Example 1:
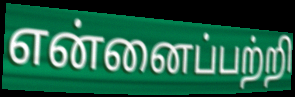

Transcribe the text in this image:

என்னைப்பற்றி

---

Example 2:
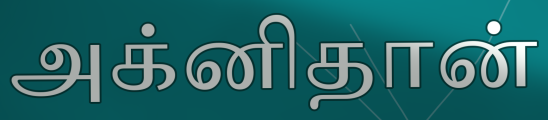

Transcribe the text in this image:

அக்னிதான்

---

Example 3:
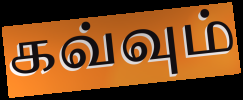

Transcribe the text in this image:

கவ்வும்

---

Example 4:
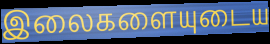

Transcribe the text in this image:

இலைகளையுடைய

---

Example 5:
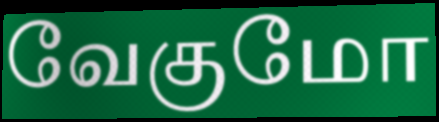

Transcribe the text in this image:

வேகுமோ